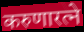
करुणारत्ने